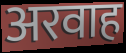
अरवाह